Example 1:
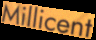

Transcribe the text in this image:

Millicent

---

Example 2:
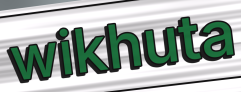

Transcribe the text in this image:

wikhuta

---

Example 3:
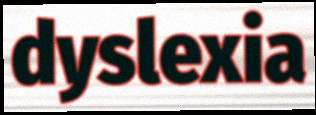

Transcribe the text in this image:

dyslexia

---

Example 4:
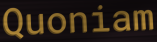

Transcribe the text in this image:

Quoniam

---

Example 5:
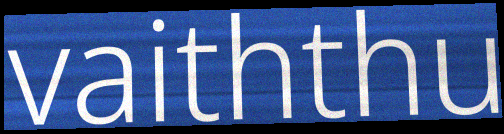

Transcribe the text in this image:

vaiththu